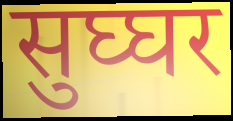
सुघ्घर